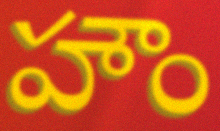
హౌం